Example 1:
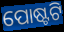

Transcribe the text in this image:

ପୋଷ୍ଟଟି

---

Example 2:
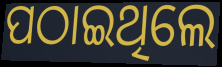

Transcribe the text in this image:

ପଠାଇଥିଲେ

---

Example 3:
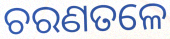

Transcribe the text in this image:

ଚରଣତଳେ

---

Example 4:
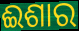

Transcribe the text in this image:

ଈଶାର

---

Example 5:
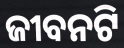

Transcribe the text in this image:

ଜୀବନଟି